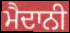
ਮੈਦਾਨੀ